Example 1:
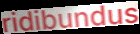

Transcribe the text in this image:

ridibundus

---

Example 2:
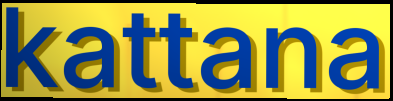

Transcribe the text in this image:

kattana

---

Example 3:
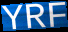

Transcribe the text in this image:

YRF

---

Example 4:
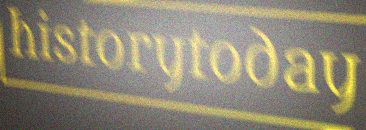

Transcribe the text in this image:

historytoday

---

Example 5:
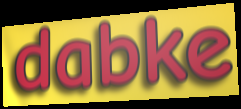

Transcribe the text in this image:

dabke